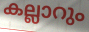
കല്ലാറും